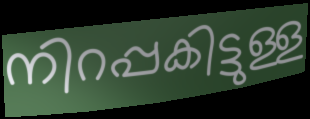
നിറപ്പകിട്ടുള്ള